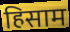
हिसाम